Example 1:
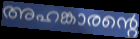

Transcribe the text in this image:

അഹങ്കാരന്റെ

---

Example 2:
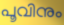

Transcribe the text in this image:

പൂവിനും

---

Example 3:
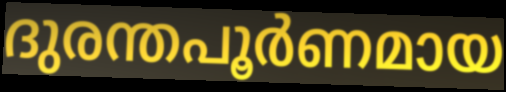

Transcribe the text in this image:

ദുരന്തപൂർണമായ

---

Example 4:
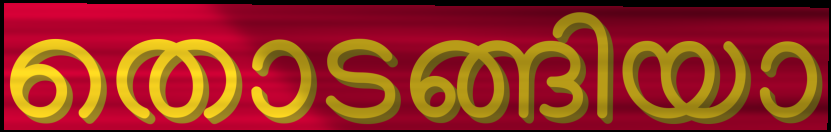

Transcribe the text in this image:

തൊടങ്ങിയാ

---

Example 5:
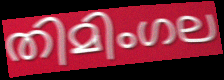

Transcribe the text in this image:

തിമിംഗല